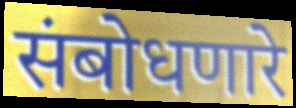
संबोधणारे